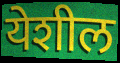
येशील